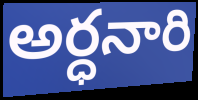
అర్ధనారి